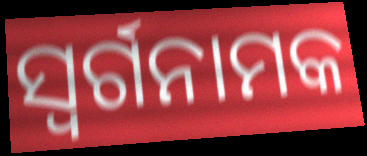
ସ୍ଵର୍ଗନାମକ